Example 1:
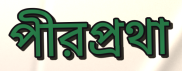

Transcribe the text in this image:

পীরপ্রথা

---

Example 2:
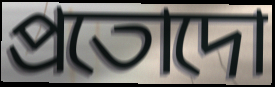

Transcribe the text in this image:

প্রতোদো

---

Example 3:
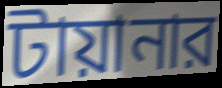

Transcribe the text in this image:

টায়ানার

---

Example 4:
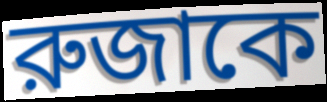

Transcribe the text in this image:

রুজাকে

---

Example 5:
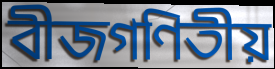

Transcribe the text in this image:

বীজগণিতীয়